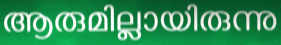
ആരുമില്ലായിരുന്നു